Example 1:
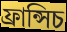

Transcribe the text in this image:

ফ্ৰান্সিচ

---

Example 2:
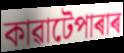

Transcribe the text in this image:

কাৱাটেপাৰাৰ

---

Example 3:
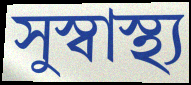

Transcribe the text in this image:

সুস্বাস্থ্য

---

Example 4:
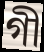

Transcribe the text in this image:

গী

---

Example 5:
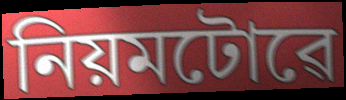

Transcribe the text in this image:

নিয়মটোৱে